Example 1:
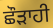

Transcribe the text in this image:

ਛੌੜਾਹੀ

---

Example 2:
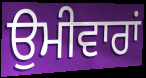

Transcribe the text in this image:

ਉਮੀਵਾਰਾਂ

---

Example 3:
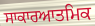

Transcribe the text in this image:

ਸਾਕਾਰਆਤਮਿਕ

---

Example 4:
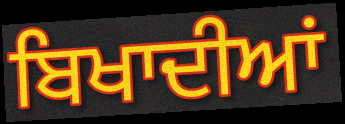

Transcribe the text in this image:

ਬਿਖਾਦੀਆਂ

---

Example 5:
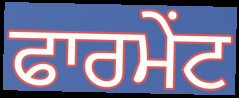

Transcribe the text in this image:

ਫਾਰਮੇਂਟ